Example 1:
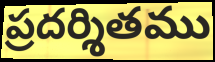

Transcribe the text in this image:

ప్రదర్శితము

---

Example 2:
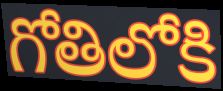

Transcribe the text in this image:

గోతిలోకి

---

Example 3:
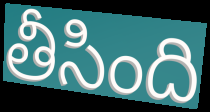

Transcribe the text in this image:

తీసింది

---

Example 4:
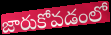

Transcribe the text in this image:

జారుకోవడంలో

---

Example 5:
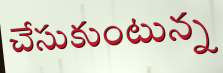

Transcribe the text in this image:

చేసుకుంటున్న